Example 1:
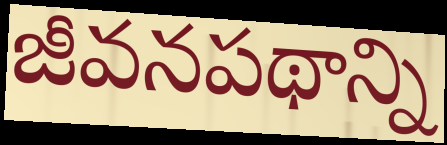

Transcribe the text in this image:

జీవనపథాన్ని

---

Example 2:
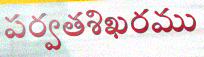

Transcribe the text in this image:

పర్వతశిఖరము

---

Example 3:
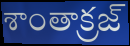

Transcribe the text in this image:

శాంతాక్రజ్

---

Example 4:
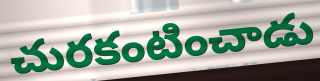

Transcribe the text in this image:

చురకంటించాడు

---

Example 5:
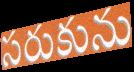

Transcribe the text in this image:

సరుకును